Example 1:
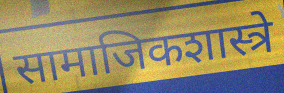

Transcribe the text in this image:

सामाजिकशास्त्रे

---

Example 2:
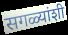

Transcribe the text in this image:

सगळ्यांशी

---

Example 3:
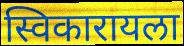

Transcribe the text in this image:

स्विकारायला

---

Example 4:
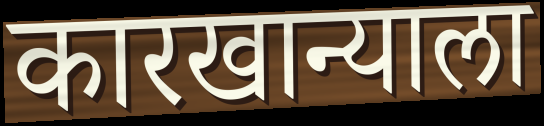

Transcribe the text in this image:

कारखान्याला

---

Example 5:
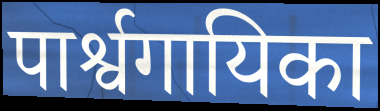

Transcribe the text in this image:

पार्श्वगायिका